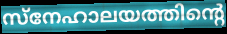
സ്നേഹാലയത്തിന്റെ